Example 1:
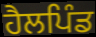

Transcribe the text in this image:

ਹੈਲਪਿੰਡ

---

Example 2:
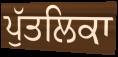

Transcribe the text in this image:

ਪੁੱਤਲਿਕਾ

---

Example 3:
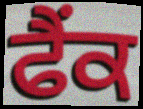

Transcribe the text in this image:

ਫੈਂਕ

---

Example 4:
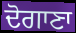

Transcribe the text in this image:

ਦੋਗਾਣਾ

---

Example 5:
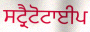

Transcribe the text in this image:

ਸਟ੍ਰੈਟੋਟਾਈਪ